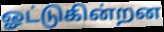
ஓட்டுகின்றன